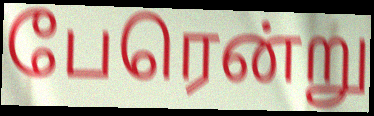
பேரென்று